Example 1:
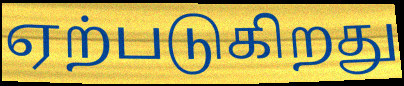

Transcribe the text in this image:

ஏற்படுகிறது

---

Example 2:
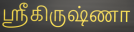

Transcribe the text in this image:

ஸ்ரீகிருஷ்ணா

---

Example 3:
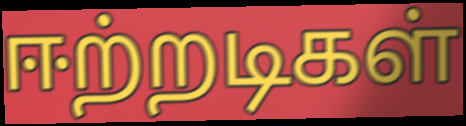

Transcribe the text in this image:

ஈற்றடிகள்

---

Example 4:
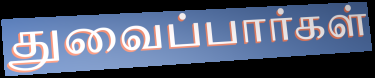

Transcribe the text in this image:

துவைப்பார்கள்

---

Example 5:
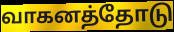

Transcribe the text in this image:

வாகனத்தோடு